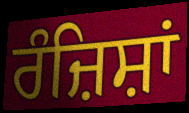
ਰੰਜ਼ਿਸ਼ਾਂ